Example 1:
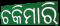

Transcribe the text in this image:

ଚକିମାରି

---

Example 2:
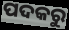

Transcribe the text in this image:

ପଦକରୁ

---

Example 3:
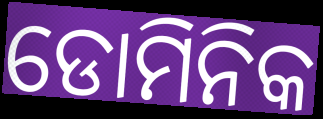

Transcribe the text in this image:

ଡୋମିନିକ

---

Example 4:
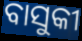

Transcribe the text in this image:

ବାସୁକୀ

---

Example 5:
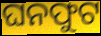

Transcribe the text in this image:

ଘନଫୁଟ